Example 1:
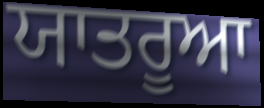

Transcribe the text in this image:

ਯਾਤਰੂਆ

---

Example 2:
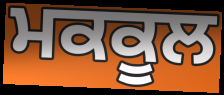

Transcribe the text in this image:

ਮਕਕੂਲ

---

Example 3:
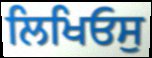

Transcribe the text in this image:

ਲਿਖਿਓਸੁ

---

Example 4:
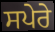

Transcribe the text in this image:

ਸਪੇਰੇ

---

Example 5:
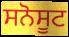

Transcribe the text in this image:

ਸਨੋਸੂਟ